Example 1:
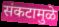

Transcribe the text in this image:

संकटामुळे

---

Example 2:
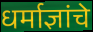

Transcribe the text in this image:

धर्माज्ञांचे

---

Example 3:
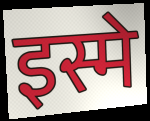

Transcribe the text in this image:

इस्मे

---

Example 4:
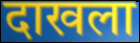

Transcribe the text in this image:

दाखला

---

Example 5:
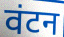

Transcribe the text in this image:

वंटन